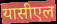
यासीएल